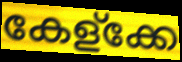
കേള്ക്കേ